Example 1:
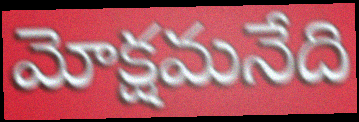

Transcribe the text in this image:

మోక్షమనేది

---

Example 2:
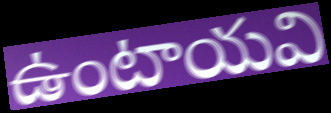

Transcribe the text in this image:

ఉంటాయవి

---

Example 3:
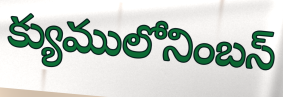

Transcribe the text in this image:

క్యుములోనింబస్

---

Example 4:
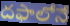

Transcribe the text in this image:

దఫాలోనే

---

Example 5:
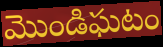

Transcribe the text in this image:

మొండిఘటం